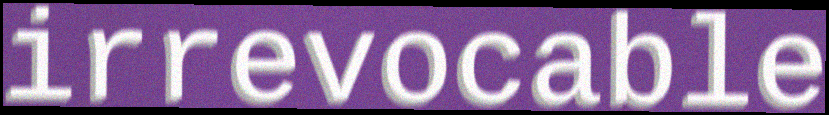
irrevocable